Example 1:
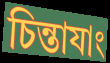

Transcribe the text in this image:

চিন্তাযাং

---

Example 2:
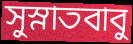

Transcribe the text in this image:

সুস্নাতবাবু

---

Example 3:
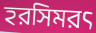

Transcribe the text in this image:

হরসিমরৎ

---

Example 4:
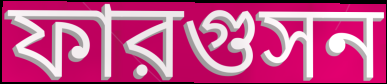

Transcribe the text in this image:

ফারগুসন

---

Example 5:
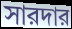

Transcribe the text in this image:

সারদার